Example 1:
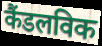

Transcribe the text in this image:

कैंडलविक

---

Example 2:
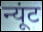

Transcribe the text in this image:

न्यूंट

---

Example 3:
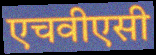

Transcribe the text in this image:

एचवीएसी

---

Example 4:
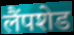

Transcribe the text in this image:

लैंपशेड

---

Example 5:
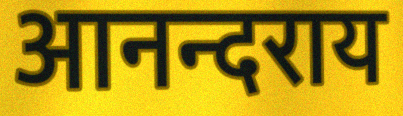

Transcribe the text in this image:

आनन्दराय